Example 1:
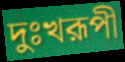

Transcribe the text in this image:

দুঃখরূপী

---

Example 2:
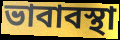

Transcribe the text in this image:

ভাবাবস্থা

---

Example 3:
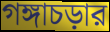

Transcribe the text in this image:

গঙ্গাচড়ার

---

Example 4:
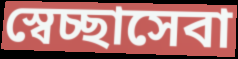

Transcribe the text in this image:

স্বেচ্ছাসেবা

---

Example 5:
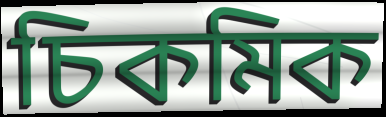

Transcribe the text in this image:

চিকমিক